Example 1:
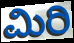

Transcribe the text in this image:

ಮಿರಿ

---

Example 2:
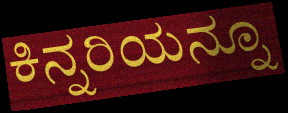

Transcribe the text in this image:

ಕಿನ್ನರಿಯನ್ನೂ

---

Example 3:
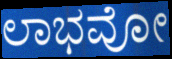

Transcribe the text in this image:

ಲಾಭವೋ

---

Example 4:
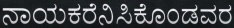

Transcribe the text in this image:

ನಾಯಕರೆನಿಸಿಕೊಂಡವರ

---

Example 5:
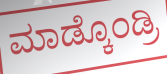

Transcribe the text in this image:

ಮಾಡ್ಕೊಂಡ್ರಿ